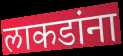
लाकडांना